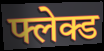
फ्लेक्ड